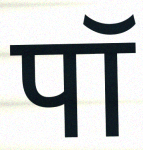
पॉ